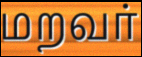
மறவர்